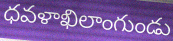
ధవళాఖిలాంగుండు